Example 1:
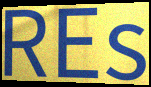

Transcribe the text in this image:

REs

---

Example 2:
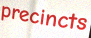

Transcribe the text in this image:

precincts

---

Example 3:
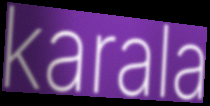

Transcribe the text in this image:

karala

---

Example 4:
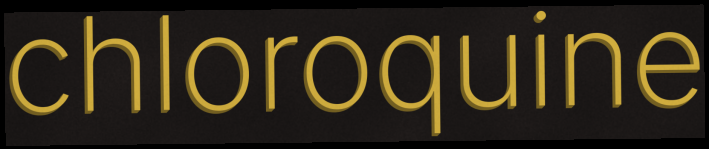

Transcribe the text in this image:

chloroquine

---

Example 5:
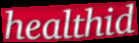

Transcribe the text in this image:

healthid